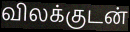
விலக்குடன்